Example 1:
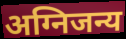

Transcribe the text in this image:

अग्निजन्य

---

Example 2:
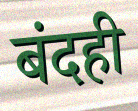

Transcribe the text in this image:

बंदही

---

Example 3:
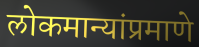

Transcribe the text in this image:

लोकमान्यांप्रमाणे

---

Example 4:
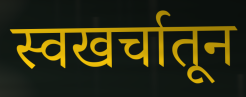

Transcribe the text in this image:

स्वखर्चातून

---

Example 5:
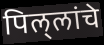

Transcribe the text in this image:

पिल्लांचे